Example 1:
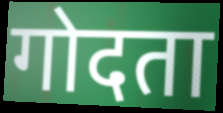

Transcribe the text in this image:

गोदता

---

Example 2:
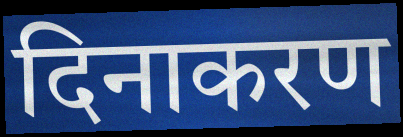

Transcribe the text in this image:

दिनाकरण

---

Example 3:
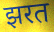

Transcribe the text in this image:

झरत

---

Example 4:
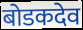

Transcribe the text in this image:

बोडकदेव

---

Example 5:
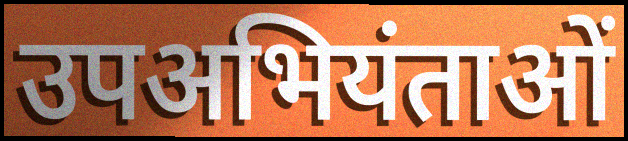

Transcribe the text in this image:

उपअभियंताओं